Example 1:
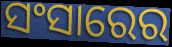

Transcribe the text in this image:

ସଂସାରେର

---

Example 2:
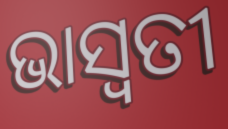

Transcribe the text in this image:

ଭାସ୍ଵତୀ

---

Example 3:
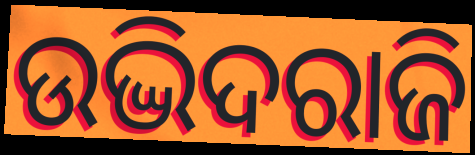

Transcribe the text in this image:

ଉଦ୍ଭିଦରାଜି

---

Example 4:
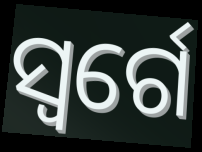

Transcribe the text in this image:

ସ୍ୱର୍ଗେ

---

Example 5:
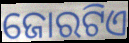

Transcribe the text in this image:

ଜୋରଟିଏ